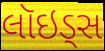
લૉઇડ્સ